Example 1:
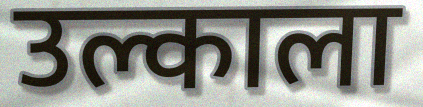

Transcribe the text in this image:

उल्काला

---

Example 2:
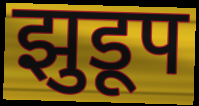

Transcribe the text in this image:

झुडूप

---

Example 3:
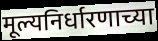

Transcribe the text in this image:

मूल्यनिर्धारणाच्या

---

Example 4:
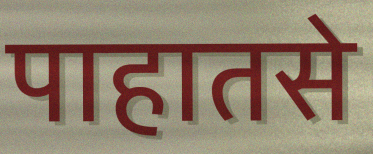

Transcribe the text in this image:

पाहातसे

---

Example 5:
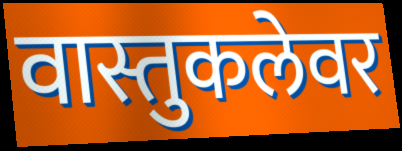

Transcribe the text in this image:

वास्तुकलेवर